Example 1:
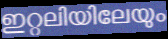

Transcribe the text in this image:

ഇറ്റലിയിലേയും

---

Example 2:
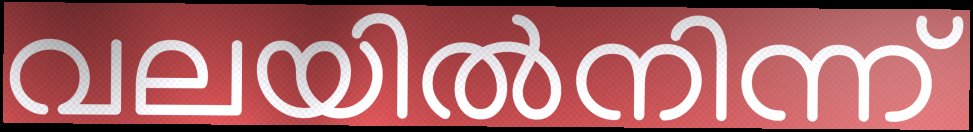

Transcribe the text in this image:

വലയിൽനിന്ന്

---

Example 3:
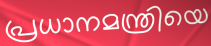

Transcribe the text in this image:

പ്രധാനമന്ത്രിയെ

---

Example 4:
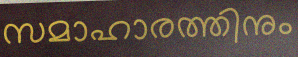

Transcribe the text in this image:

സമാഹാരത്തിനും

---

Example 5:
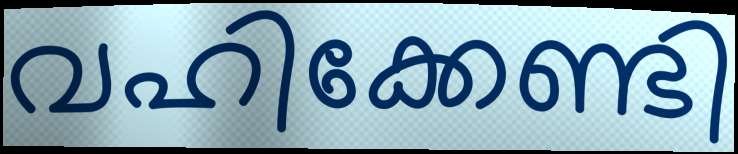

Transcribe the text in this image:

വഹിക്കേണ്ടി